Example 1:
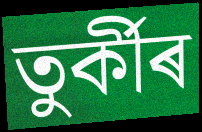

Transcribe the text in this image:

তুৰ্কীৰ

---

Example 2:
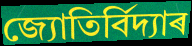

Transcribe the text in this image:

জ্যোতিৰ্বিদ্যাৰ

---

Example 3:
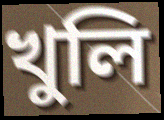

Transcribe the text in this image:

খুলি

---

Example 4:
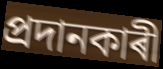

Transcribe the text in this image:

প্ৰদানকাৰী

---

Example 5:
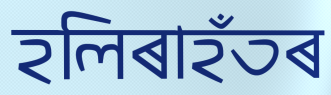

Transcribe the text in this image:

হলিৰাহঁতৰ